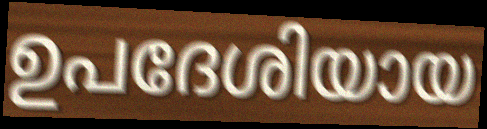
ഉപദേശിയായ